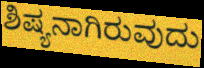
ಶಿಷ್ಯನಾಗಿರುವುದು